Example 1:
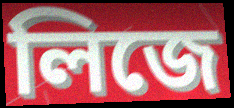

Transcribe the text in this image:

লিজে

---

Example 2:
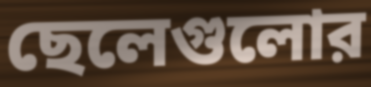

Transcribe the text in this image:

ছেলেগুলোর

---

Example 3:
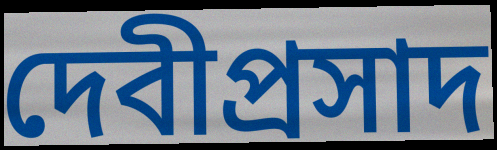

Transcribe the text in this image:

দেবীপ্রসাদ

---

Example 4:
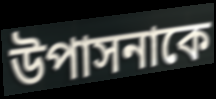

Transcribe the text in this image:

উপাসনাকে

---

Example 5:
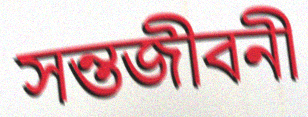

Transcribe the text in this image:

সন্তজীবনী